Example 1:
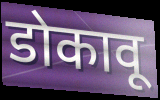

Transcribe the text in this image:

डोकावू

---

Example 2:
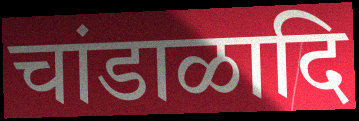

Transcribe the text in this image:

चांडाळादि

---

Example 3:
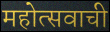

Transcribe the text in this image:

महोत्सवाची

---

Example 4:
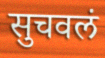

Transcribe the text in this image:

सुचवलं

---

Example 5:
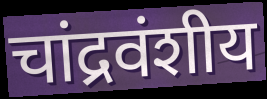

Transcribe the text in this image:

चांद्रवंशीय